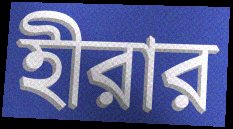
হীরার